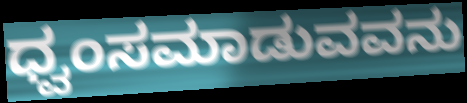
ಧ್ವಂಸಮಾಡುವವನು